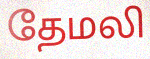
தேமலி